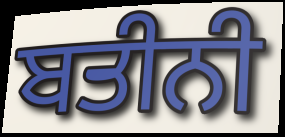
ਬਤੀਨੀ